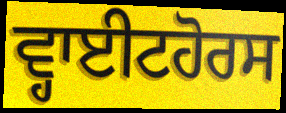
ਵ੍ਹਾਈਟਹੋਰਸ